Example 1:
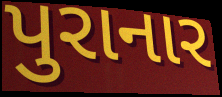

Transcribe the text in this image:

પુરાનાર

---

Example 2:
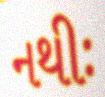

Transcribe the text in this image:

નથીઃ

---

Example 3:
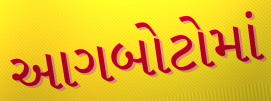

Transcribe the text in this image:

આગબોટોમાં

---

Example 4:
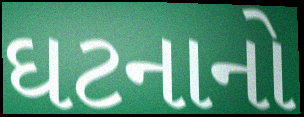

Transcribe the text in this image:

ઘટનાનો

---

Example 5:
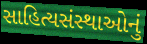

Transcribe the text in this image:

સાહિત્યસંસ્થાઓનું